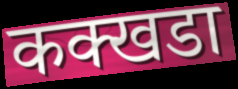
कक्खडा